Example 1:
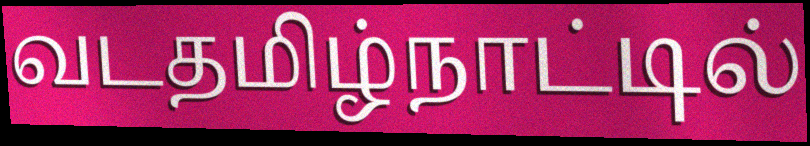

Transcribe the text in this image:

வடதமிழ்நாட்டில்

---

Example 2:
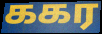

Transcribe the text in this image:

ககர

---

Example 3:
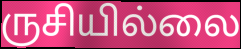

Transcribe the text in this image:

ருசியில்லை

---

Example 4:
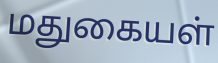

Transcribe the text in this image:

மதுகையள்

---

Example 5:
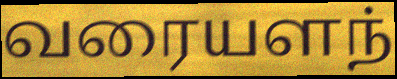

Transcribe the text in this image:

வரையளந்